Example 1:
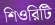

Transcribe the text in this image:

শিওরিটি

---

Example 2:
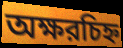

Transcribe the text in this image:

অক্ষরচিহ্ন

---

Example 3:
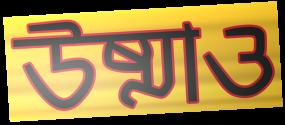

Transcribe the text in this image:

উষ্মাও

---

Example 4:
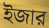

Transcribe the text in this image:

ইজার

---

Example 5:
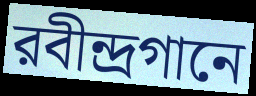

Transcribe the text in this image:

রবীন্দ্রগানে